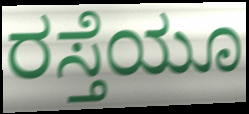
ರಸ್ತೆಯೂ